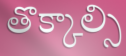
తొక్కాల్సి